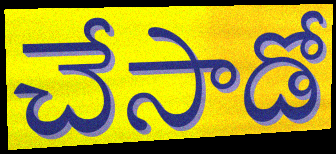
చేసాడో